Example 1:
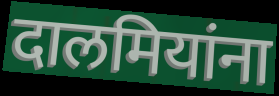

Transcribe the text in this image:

दालमियांना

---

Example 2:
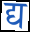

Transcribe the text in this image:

द्य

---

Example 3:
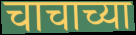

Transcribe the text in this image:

चाचाच्या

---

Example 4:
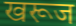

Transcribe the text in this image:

खरूज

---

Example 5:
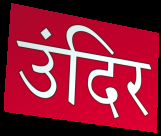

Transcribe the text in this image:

उंदिर